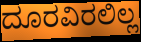
ದೂರವಿರಲಿಲ್ಲ